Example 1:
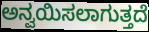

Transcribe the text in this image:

ಅನ್ವಯಿಸಲಾಗುತ್ತದೆ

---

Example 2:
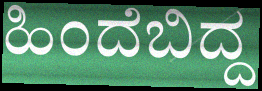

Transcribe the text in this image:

ಹಿಂದೆಬಿದ್ದ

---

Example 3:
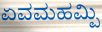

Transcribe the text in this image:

ಏವಮಹಮ್ಪಿ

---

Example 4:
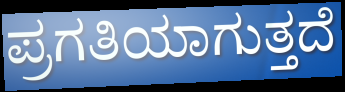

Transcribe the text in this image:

ಪ್ರಗತಿಯಾಗುತ್ತದೆ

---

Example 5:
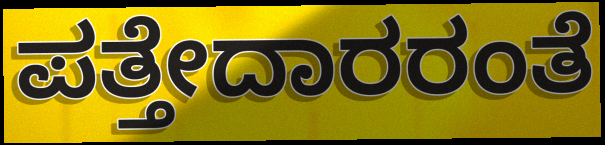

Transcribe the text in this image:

ಪತ್ತೇದಾರರಂತೆ